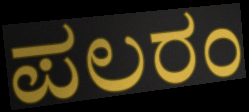
ಪಲರಂ